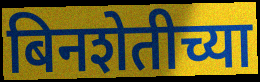
बिनशेतीच्या